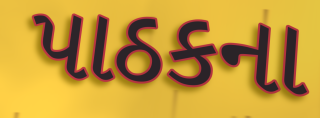
પાઠકના